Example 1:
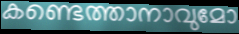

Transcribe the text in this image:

കണ്ടെത്താനാവുമോ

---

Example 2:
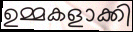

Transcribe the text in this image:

ഉമ്മകളാക്കി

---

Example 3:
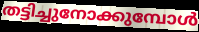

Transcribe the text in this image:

തട്ടിച്ചുനോക്കുമ്പോൾ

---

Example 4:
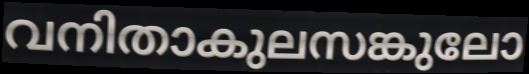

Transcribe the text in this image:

വനിതാകുലസങ്കുലോ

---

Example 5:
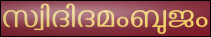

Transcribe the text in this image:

സ്വിദിദമംബുജം